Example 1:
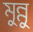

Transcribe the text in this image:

মুন্নু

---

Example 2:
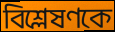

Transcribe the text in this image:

বিশ্লেষণকে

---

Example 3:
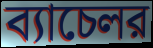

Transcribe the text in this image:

ব্যাচেলর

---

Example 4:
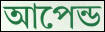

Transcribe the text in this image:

আপেন্ড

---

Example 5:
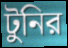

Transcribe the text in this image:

টুনির